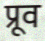
प्रूव